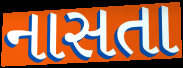
નાસતા